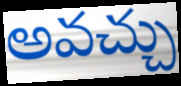
అవచ్చు